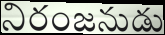
నిరంజనుడు